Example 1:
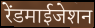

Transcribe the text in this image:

रेंडमाईजेशन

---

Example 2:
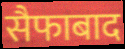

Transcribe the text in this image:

सैफाबाद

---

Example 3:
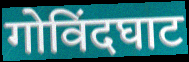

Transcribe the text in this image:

गोविंदघाट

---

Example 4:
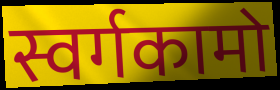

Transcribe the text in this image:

स्वर्गकामो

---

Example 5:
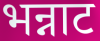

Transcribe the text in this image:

भन्नाट